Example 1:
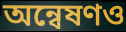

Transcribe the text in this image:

অন্বেষণও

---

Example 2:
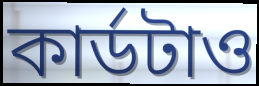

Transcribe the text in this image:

কার্ডটাও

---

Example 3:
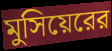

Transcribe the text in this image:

মুসিয়েরের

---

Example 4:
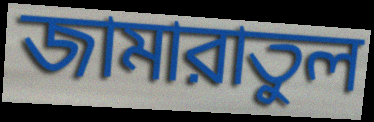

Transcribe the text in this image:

জামারাতুল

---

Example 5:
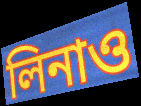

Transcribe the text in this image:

লিনাও